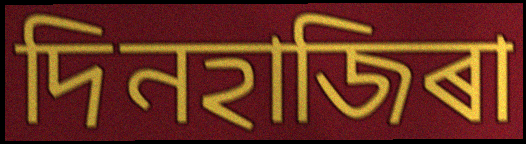
দিনহাজিৰা